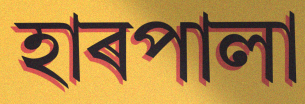
হাৰপালা